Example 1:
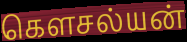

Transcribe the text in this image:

கௌசல்யன்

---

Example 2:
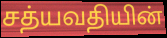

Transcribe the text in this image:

சத்யவதியின்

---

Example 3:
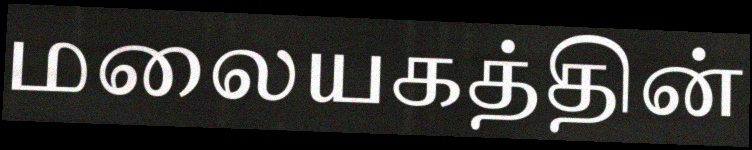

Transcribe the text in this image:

மலையகத்தின்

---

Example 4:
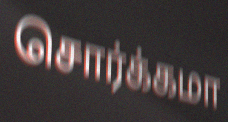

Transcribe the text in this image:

சொர்க்கமா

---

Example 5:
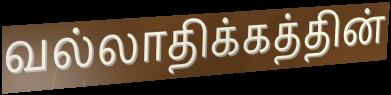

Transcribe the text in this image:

வல்லாதிக்கத்தின்